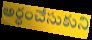
అర్ధంచేసుకుని